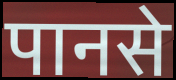
पानसे